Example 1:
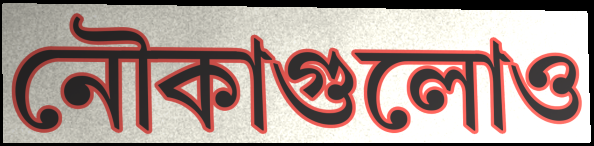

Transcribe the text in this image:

নৌকাগুলোও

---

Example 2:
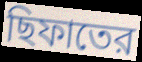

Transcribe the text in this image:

ছিফাতের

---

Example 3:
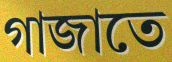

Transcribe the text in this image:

গাজাতে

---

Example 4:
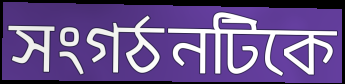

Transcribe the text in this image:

সংগঠনটিকে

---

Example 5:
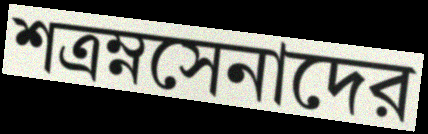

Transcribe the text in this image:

শত্রম্নসেনাদের